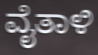
ವೈತಾಳಿ